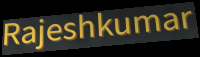
Rajeshkumar